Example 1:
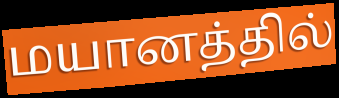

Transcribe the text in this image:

மயானத்தில்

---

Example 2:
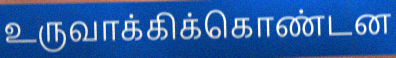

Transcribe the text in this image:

உருவாக்கிக்கொண்டன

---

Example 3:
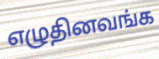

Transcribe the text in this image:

எழுதினவங்க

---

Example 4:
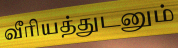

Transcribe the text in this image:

வீரியத்துடனும்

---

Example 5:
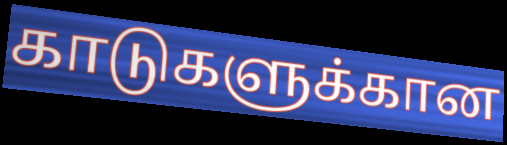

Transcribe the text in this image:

காடுகளுக்கான